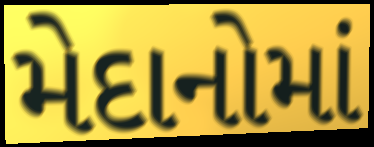
મેદાનોમાં